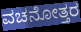
ವಚನೋತ್ತರ